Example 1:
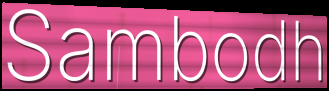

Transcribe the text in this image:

Sambodh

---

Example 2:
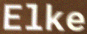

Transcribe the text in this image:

Elke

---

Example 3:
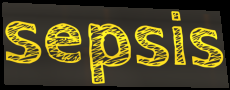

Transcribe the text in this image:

sepsis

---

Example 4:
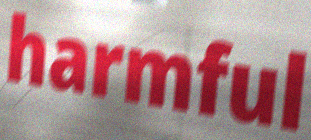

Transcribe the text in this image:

harmful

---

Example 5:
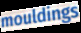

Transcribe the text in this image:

mouldings